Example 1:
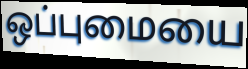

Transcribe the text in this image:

ஒப்புமையை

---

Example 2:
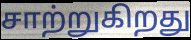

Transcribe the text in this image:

சாற்றுகிறது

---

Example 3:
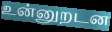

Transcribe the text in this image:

உன்னுறடன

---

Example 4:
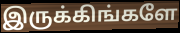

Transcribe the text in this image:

இருக்கிங்களே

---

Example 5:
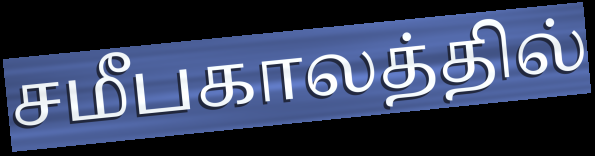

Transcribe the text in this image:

சமீபகாலத்தில்